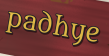
padhye